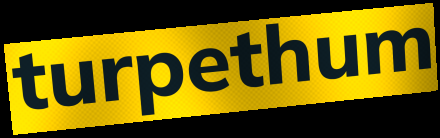
turpethum